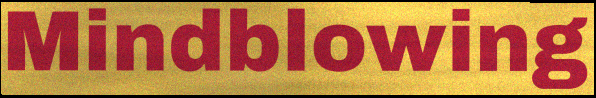
Mindblowing